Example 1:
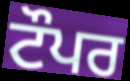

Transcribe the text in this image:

ਟੌਪਰ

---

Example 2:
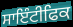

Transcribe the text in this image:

ਸਾਇੰਟੀਫਿਕ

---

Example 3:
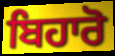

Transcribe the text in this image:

ਬਿਹਾਰੋ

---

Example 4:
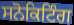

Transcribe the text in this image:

ਸਨੋਕਿਟਿੰਗ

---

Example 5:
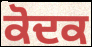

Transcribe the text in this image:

ਕੋਦਕ